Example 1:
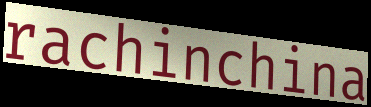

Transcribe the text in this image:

rachinchina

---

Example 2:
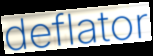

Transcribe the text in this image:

deflator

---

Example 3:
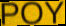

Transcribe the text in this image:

POY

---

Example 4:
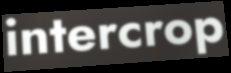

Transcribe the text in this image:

intercrop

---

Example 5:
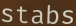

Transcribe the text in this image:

stabs